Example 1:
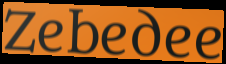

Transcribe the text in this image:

Zebedee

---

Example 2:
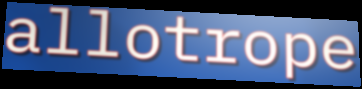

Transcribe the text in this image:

allotrope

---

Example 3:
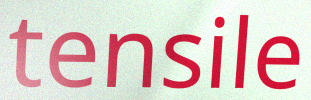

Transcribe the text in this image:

tensile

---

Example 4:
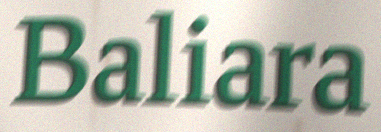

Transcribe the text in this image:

Baliara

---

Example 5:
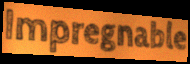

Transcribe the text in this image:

Impregnable